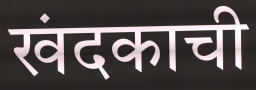
खंदकाची